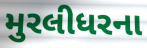
મુરલીધરના